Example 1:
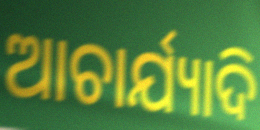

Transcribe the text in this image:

ଆଚାର୍ଯ୍ୟାଦି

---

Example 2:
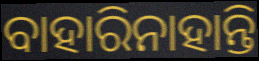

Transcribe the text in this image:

ବାହାରିନାହାନ୍ତି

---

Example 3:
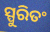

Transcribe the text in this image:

ସ୍ପୁରିତଂ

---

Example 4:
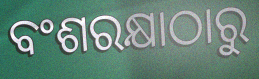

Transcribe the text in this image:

ବଂଶରକ୍ଷାଠାରୁ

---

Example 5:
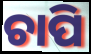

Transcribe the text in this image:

ଚାପି